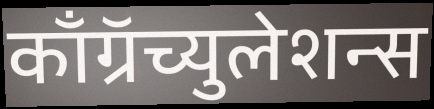
काँग्रॅच्युलेशन्स